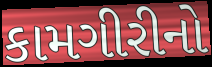
કામગીરીનો